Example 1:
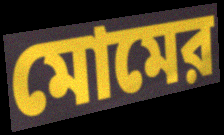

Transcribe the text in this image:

মোমের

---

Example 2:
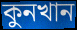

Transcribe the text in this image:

কুনখান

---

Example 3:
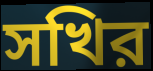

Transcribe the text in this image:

সখির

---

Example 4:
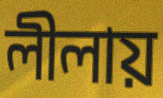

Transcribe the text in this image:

লীলায়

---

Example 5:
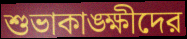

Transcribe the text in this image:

শুভাকাঙ্ক্ষীদের